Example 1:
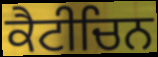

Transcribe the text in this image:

ਕੈਟੀਚਿਨ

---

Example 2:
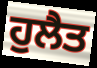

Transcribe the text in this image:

ਹੁਲੈਤ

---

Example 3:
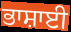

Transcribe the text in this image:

ਭਾਸ਼ਾਈ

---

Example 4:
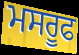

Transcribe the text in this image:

ਮਸਰੂਫ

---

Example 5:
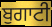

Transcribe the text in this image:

ਬੁਗਾਟੀ